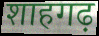
शाहगढ़